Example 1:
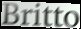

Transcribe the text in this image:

Britto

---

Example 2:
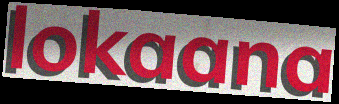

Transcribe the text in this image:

lokaana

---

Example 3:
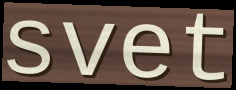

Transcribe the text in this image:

svet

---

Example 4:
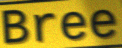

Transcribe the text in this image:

Bree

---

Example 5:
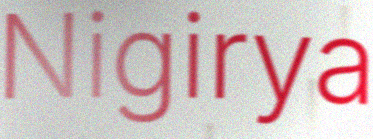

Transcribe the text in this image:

Nigirya